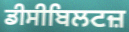
ਡੀਸੀਬਿਲਟਜ਼